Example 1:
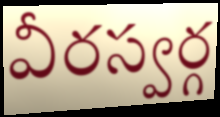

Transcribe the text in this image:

వీరస్వర్గ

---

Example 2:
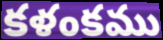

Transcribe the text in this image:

కళంకము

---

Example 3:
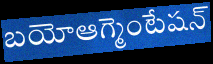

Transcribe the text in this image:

బయోఆగ్మెంటేషన్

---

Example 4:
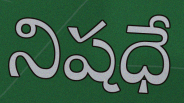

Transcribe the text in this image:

నిషధే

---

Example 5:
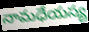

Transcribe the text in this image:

నామధేయస్య